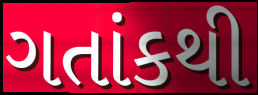
ગતાંકથી